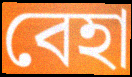
বেহা